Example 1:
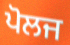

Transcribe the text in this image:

ਪੋਲਜ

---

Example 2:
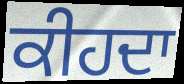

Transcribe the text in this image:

ਕੀਹਦਾ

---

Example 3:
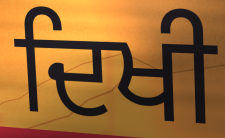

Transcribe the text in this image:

ਦਿਖੀ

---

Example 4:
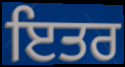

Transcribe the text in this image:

ਇਤਰ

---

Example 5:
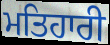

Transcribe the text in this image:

ਮਤਿਹਾਰੀ